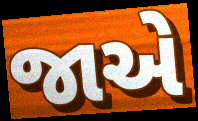
જાએ